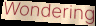
Wondering